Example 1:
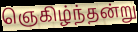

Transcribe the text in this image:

ஞெகிழ்ந்தன்று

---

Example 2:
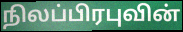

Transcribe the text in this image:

நிலப்பிரபுவின்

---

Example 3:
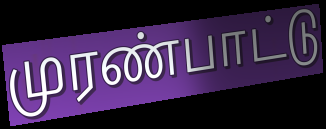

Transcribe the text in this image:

முரண்பாட்டு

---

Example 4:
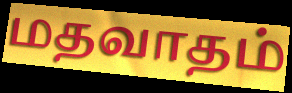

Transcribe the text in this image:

மதவாதம்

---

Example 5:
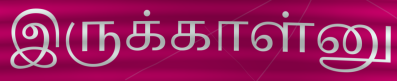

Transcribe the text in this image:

இருக்காள்னு